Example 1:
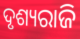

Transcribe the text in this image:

ଦୃଶ୍ୟରାଜି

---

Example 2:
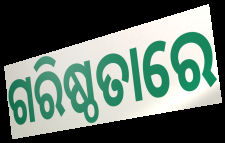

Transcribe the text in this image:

ଗରିଷ୍ଠତାରେ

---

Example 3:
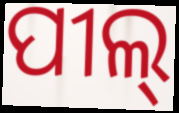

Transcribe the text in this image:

ପୀଲ୍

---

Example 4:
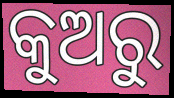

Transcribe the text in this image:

କୁଅରୁ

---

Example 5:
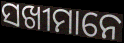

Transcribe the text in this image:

ସଖୀମାନେ